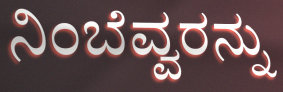
ನಿಂಬೆವ್ವರನ್ನು